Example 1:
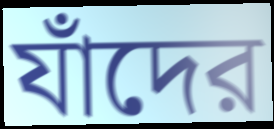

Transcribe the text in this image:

যাঁদের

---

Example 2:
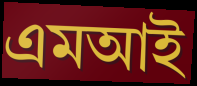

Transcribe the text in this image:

এমআই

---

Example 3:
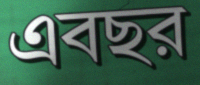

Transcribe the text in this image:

এবছর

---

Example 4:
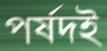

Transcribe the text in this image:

পর্ষদই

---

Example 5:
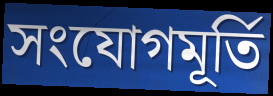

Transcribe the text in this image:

সংযোগমূর্তি